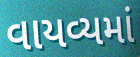
વાયવ્યમાં